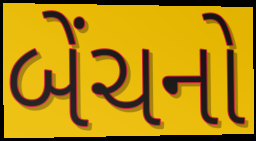
બેંચનો